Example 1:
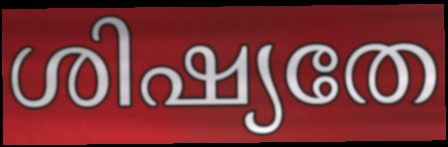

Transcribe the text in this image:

ശിഷ്യതേ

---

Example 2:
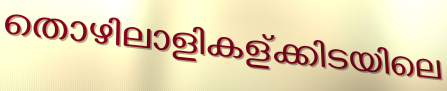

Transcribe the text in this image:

തൊഴിലാളികള്ക്കിടയിലെ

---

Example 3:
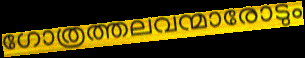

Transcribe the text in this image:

ഗോത്രത്തലവന്മാരോടും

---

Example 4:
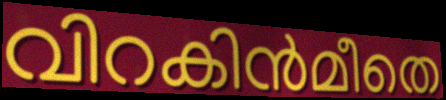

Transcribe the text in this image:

വിറകിൻമീതെ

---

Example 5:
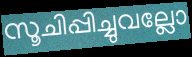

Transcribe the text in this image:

സൂചിപ്പിച്ചുവല്ലോ